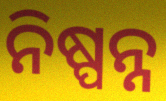
ନିଷ୍ପନ୍ନ